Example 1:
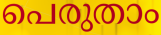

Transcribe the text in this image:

പെരുതാം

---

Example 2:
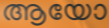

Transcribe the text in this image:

ആയോ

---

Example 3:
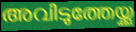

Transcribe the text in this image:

അവിടുത്തേയ്ക്കു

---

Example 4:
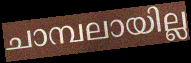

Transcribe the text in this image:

ചാമ്പലായില്ല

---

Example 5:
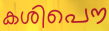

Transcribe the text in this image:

കശിപൌ